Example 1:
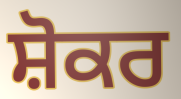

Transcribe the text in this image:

ਸ਼ੋਕਰ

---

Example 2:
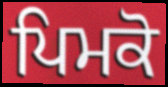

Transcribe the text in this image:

ਪਿਮਕੋ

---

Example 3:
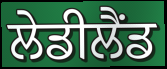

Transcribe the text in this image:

ਲੇਡੀਲੈਂਡ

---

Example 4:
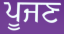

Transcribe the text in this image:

ਪੂਜਣ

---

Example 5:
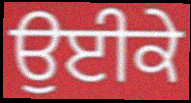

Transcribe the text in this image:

ਉਈਕੇ